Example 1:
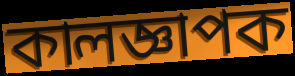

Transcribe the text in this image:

কালজ্ঞাপক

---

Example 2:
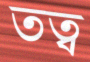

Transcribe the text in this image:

তত্ব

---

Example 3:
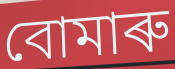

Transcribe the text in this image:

বোমাৰু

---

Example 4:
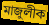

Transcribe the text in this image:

মাজুলীক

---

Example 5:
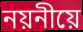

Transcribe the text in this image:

নয়নীয়ে